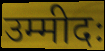
उम्मीदः